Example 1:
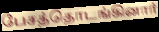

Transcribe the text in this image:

பேசத்தொடங்கினார்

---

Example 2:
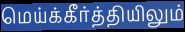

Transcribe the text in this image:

மெய்க்கீர்த்தியிலும்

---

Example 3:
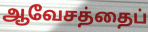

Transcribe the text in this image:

ஆவேசத்தைப்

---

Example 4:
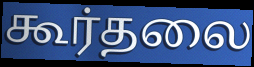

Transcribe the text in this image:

கூர்தலை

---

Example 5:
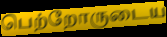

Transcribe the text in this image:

பெற்றோருடைய